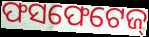
ଫସଫେଟେଜ୍